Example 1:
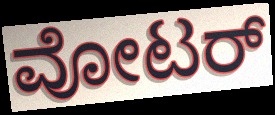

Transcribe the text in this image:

ವೋಟರ್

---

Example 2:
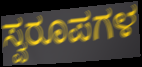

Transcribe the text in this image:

ಸ್ವರೂಪಗಳ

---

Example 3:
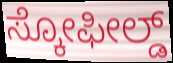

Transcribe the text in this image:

ಸ್ಕೋಫೀಲ್ಡ್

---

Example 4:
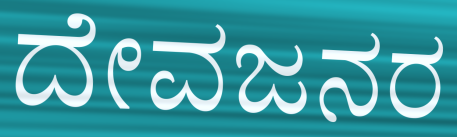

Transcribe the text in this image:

ದೇವಜನರ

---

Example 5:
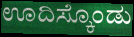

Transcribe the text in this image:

ಊದಿಸ್ಕೊಂಡು